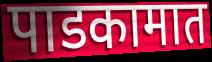
पाडकामात